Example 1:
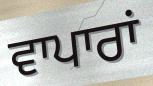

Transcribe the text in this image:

ਵਾਪਾਰਾਂ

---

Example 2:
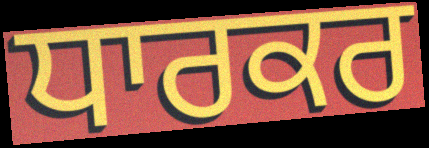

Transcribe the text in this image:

ਧਾਰਕਰ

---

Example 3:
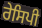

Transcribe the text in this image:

ਰੇਸਿਪੀ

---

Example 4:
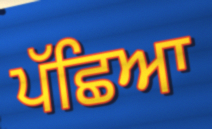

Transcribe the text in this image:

ਪੱਛਿਆ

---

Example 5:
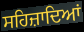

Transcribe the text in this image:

ਸਹਿਜ਼ਾਦਿਆਂ